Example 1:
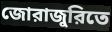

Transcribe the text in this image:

জোরাজুরিতে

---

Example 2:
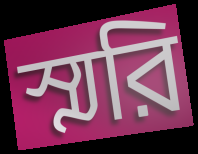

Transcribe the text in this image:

স্মরি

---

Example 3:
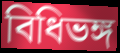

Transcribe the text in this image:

বিধিভঙ্গ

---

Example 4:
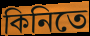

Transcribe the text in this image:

কিনিতে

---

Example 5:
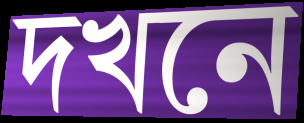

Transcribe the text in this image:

দখনে